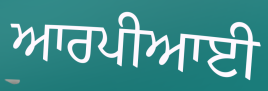
ਆਰਪੀਆਈ